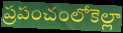
ప్రపంచంలోకెల్లా